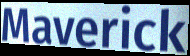
Maverick